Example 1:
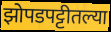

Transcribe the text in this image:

झोपडपट्टीतल्या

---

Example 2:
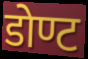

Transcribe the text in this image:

डोण्ट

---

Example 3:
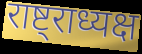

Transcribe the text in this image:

राष्ट्राध्यक्ष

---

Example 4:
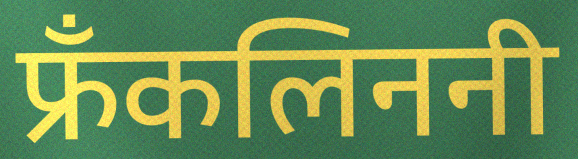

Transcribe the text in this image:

फ्रँकलिननी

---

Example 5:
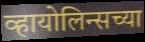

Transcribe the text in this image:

व्हायोलिन्सच्या